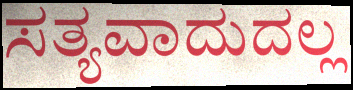
ಸತ್ಯವಾದುದಲ್ಲ